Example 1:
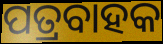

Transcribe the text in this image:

ପତ୍ରବାହକ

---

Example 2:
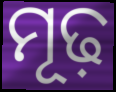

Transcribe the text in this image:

ମୂଢ଼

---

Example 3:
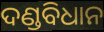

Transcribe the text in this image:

ଦଣ୍ଡବିଧାନ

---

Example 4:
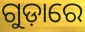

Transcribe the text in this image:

ଗୁଡ଼ାରେ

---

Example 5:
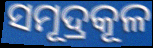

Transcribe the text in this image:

ସମୂଦ୍ରକୂଳ